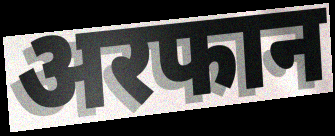
अरफान